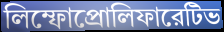
লিম্ফোপ্রোলিফারেটিভ